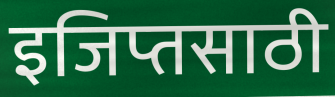
इजिप्तसाठी